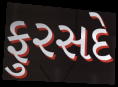
ફુરસદે